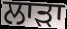
ਲਾੜਾ